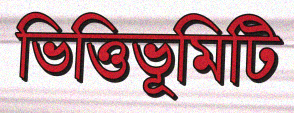
ভিত্তিভূমিটি